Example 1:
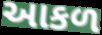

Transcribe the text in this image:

આકળ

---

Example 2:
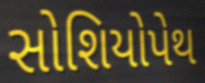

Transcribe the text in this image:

સોશિયોપેથ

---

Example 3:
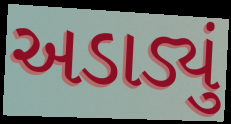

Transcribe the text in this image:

અડાડ્યું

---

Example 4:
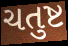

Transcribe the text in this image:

ચતુષ્ટ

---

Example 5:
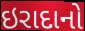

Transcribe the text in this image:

ઇરાદાનો